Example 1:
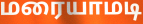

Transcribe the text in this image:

மரையாமடி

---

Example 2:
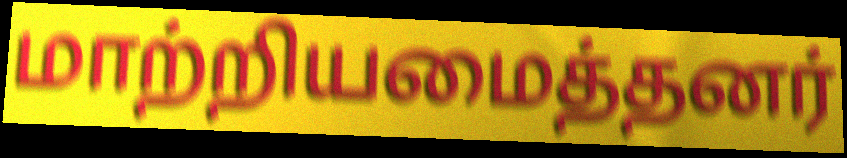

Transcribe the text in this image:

மாற்றியமைத்தனர்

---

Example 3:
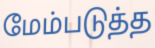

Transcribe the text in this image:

மேம்படுத்த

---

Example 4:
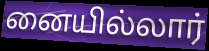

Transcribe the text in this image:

னையில்லார்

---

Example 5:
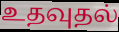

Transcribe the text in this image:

உதவுதல்